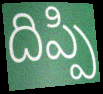
దిప్పి